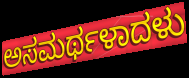
ಅಸಮರ್ಥಳಾದಳು